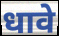
धावे